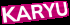
KARYU